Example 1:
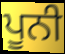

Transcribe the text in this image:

ਪੂਨੀ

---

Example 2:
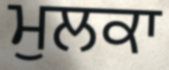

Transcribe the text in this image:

ਮੁਲਕਾ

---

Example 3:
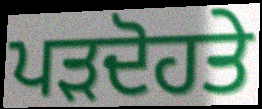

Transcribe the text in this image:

ਪੜਦੋਹਤੇ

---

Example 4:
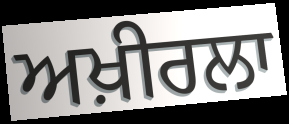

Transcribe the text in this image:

ਅਖ਼ੀਰਲਾ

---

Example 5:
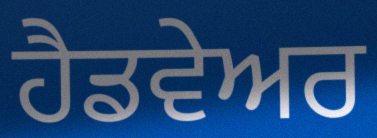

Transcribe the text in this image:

ਹੈਡਵੇਅਰ